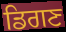
ਡਿਗਣ